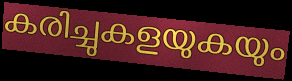
കരിച്ചുകളയുകയും